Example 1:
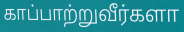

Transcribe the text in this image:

காப்பாற்றுவீர்களா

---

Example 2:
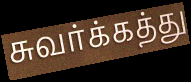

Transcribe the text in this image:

சுவர்க்கத்து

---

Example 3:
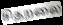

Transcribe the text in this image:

சிதறலை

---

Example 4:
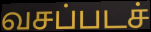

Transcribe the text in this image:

வசப்படச்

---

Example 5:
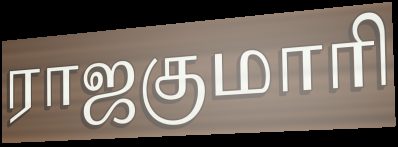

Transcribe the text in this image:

ராஜகுமாரி